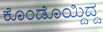
ಕೊಂಡೊಯ್ದಿದ್ದ